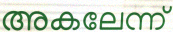
അകലേന്ന്